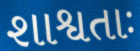
શાશ્વતાઃ